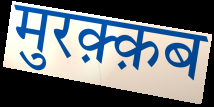
मुरक़्क़ब